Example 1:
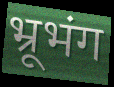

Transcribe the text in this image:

भ्रूभंग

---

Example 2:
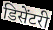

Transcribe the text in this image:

डिसेंटरी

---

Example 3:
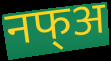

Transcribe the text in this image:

नफ्अ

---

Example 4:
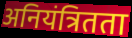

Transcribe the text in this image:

अनियंत्रितता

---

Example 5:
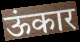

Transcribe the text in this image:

ऊंकार